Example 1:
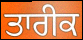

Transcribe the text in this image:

ਤਾਰੀਕ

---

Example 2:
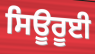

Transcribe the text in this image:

ਸਿਊਰੂਈ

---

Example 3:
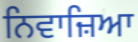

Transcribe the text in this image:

ਨਿਵਾਜ਼ਿਆ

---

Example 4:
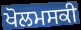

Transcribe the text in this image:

ਖੋਲਮਸਕੀ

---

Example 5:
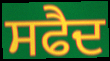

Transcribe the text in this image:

ਸਫੈਦ